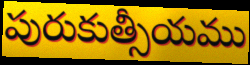
పురుకుత్సీయము